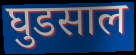
घुडसाल